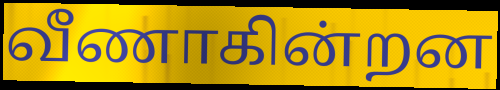
வீணாகின்றன